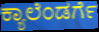
ಕ್ಯಾಲೆಂಡರ್ಗೆ